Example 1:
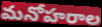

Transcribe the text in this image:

మనోహరాల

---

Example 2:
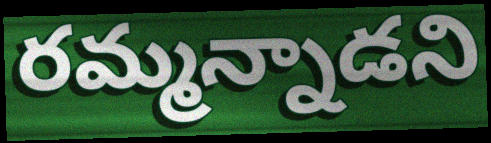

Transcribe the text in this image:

రమ్మన్నాడని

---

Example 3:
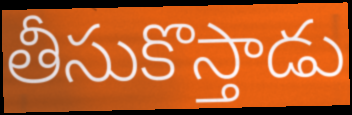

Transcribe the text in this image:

తీసుకొస్తాడు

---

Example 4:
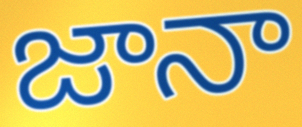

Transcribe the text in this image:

జానా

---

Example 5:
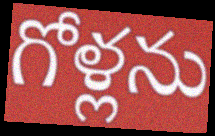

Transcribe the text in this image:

గోళ్లను